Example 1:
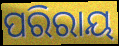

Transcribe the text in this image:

ପରିରାୟ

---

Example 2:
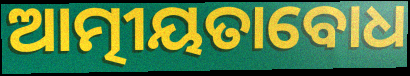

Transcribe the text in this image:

ଆତ୍ମୀୟତାବୋଧ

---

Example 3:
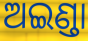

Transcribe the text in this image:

ଅଇଣ୍ଡା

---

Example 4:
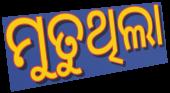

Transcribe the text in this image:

ମୁତୁଥିଲା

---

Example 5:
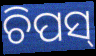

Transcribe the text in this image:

ଚିପସ୍